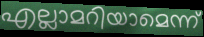
എല്ലാമറിയാമെന്ന്